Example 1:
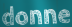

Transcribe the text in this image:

donne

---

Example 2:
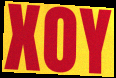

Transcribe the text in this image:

XOY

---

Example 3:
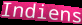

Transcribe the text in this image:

Indiens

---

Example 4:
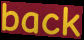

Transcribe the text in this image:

back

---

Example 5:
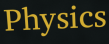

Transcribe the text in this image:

Physics